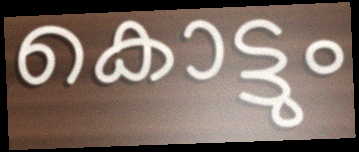
കൊട്ടും